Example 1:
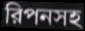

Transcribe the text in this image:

রিপনসহ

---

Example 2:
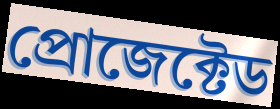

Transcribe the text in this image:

প্রোজেক্টেড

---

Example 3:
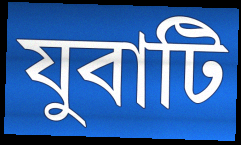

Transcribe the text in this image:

যুবাটি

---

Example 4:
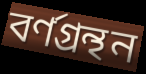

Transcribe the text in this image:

বর্ণগ্রন্থন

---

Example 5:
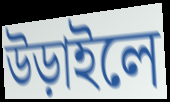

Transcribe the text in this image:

উড়াইলে